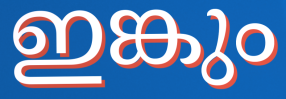
ഇങ്കും